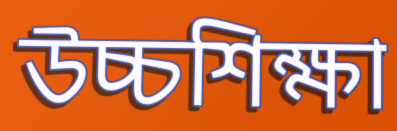
উচ্চশিক্ষা